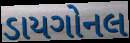
ડાયગોનલ